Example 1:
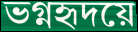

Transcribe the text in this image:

ভগ্নহৃদয়ে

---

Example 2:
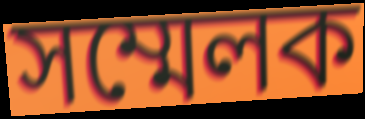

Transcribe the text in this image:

সম্মেলক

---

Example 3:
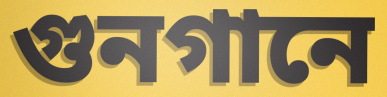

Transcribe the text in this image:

গুনগানে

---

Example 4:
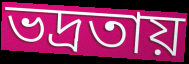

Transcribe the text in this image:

ভদ্রতায়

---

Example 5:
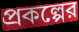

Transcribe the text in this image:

প্রকল্পের